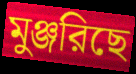
মুঞ্জরিছে